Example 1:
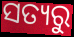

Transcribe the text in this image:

ସତ୍ୟରୁ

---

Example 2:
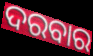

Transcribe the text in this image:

ଦରବାର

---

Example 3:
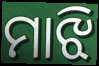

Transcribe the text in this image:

ମାଝି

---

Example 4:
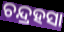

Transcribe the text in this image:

ଚନ୍ଦ୍ରହସା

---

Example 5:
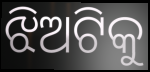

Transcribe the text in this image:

ଝିଅଟିକୁ